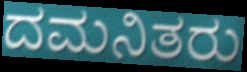
ದಮನಿತರು